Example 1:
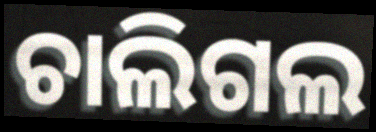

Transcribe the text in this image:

ଚାଲିଗଲ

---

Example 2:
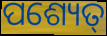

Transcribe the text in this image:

ପଶ୍ୟେତ୍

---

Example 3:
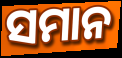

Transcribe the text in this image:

ସମାନ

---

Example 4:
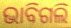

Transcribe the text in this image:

ଭାବିଗଲି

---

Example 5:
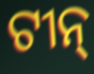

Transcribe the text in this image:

ଟୀନ୍